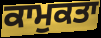
ਕਾਮੁਕਤਾ